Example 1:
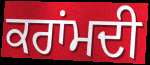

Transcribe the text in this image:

ਕਰਾਂਮਦੀ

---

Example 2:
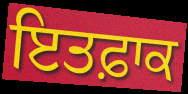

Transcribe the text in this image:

ਇਤਫ਼ਾਕ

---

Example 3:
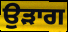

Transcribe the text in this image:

ਉੜਾਗ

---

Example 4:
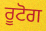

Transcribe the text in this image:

ਰੂਟੋਗ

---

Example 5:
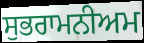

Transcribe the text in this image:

ਸੁਭਰਾਮਨੀਅਮ